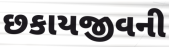
છકાયજીવની